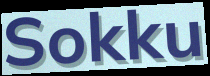
Sokku